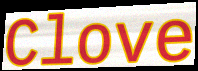
Clove